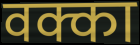
वक्का